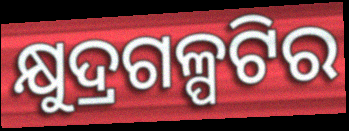
କ୍ଷୁଦ୍ରଗଳ୍ପଟିର